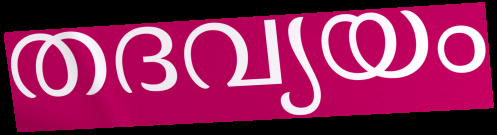
തദവ്യയം